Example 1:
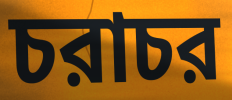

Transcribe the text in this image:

চরাচর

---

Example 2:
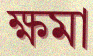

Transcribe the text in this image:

ক্ষমা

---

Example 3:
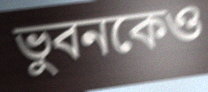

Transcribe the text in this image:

ভুবনকেও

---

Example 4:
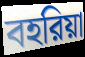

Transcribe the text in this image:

বহরিয়া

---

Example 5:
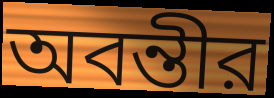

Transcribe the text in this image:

অবন্তীর